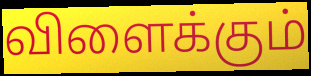
விளைக்கும்